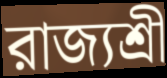
রাজ্যশ্রী